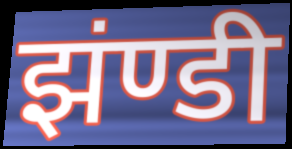
झंण्डी